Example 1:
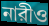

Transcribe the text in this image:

নারীও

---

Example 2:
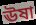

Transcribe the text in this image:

ঊষা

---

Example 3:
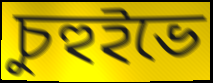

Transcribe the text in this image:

চুহুইভে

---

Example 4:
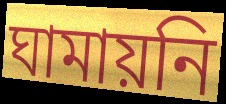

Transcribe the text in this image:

ঘামায়নি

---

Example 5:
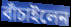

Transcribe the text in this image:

বাঁচাইলেন